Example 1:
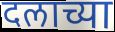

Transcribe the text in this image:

दलाच्या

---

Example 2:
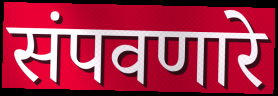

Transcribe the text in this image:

संपवणारे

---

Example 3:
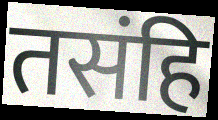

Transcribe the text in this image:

तसंहि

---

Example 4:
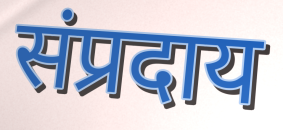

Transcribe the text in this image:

संप्रदाय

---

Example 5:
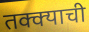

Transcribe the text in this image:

तक्क्याची